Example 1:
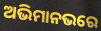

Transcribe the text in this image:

ଅଭିମାନଭରେ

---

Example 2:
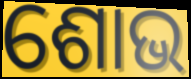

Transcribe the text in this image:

ଶୋଭ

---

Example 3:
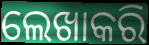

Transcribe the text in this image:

ଲେଖାକରି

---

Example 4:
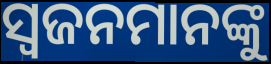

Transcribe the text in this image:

ସ୍ବଜନମାନଙ୍କୁ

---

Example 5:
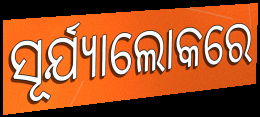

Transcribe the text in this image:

ସୂର୍ଯ୍ୟାଲୋକରେ